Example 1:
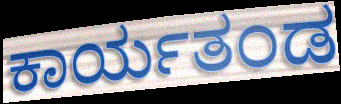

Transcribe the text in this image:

ಕಾರ್ಯತಂಡ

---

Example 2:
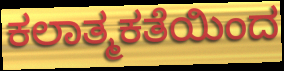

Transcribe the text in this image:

ಕಲಾತ್ಮಕತೆಯಿಂದ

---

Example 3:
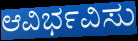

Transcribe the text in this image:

ಆವಿರ್ಭವಿಸು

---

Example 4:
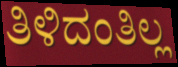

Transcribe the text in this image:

ತಿಳಿದಂತಿಲ್ಲ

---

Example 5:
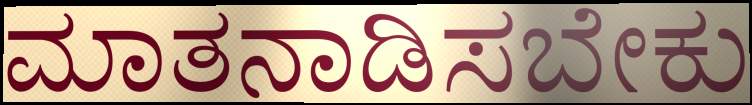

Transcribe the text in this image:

ಮಾತನಾಡಿಸಬೇಕು